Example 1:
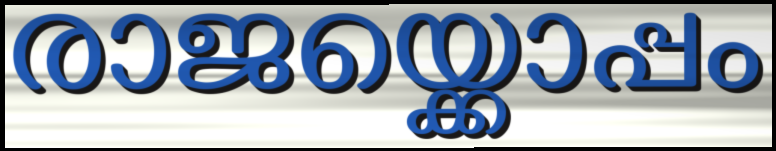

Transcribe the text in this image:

രാജയ്ക്കൊപ്പം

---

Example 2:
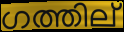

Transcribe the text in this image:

ഗത്തില്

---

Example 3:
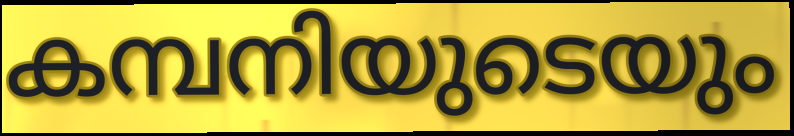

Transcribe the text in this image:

കമ്പനിയുടെയും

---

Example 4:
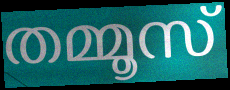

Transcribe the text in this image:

തമ്മൂസ്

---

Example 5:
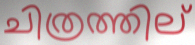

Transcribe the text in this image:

ചിത്രത്തില്